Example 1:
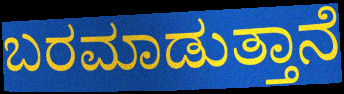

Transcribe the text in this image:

ಬರಮಾಡುತ್ತಾನೆ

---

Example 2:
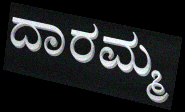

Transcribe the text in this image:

ದಾರಮ್ಮ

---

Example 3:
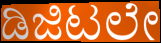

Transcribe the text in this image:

ಡಿಜಿಟಲೇ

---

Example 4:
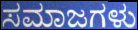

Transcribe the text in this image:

ಸಮಾಜಗಳು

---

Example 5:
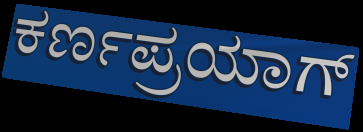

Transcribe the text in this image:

ಕರ್ಣಪ್ರಯಾಗ್